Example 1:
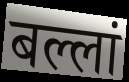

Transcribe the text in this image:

बल्लां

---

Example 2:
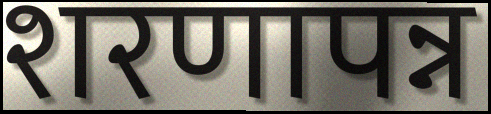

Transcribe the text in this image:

शरणापन्न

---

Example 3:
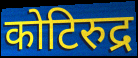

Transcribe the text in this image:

कोटिरुद्र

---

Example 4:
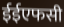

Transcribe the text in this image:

ईईएफसी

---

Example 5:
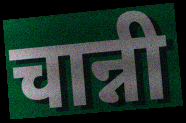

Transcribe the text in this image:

चान्नी